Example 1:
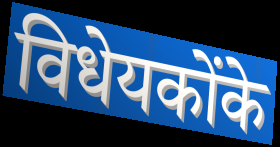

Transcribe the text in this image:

विधेयकोंके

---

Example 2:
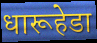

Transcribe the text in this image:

धारूहेडा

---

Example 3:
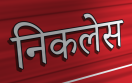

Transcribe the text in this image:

निकलेस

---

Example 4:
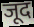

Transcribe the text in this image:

जूद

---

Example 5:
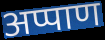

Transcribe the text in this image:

अप्पाण